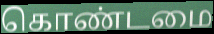
கொண்டமை